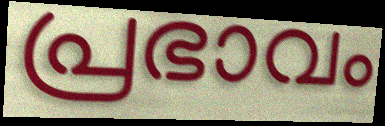
പ്രഭാവം